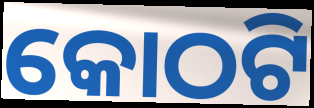
କୋଠଟି